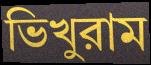
ভিখুরাম